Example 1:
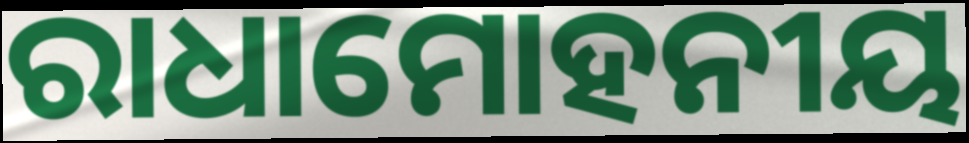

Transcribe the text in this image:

ରାଧାମୋହନୀୟ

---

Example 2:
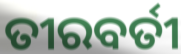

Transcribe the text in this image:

ତୀରବର୍ତୀ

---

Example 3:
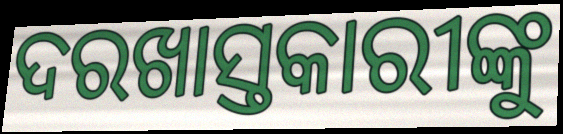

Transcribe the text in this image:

ଦରଖାସ୍ତକାରୀଙ୍କୁ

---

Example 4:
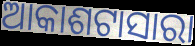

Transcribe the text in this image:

ଆକାଶଟାସାରା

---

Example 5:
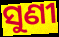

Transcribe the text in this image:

ସୁଣୀ